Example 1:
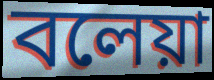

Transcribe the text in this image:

বলেয়া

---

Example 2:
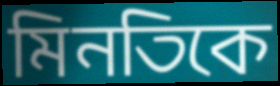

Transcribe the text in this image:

মিনতিকে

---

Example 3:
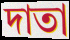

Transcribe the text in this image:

দাতা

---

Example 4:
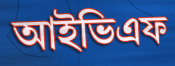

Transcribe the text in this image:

আইভিএফ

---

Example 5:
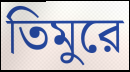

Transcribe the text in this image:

তিমুরে